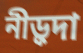
নীড়ুদা